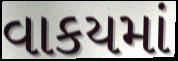
વાકયમાં